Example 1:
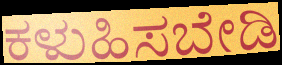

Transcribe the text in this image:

ಕಳುಹಿಸಬೇಡಿ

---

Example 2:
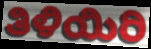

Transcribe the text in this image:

ತಿಳಿಯಿರಿ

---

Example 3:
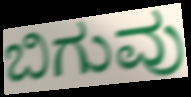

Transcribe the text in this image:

ಬಿಗುವು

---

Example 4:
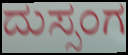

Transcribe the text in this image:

ದುಸ್ಸಂಗ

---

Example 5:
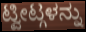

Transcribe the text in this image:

ಟ್ವೀಟ್ಗಳನ್ನು